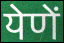
येणें